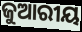
ଜୁଆରୀୟ